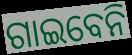
ଗାଇବେନି